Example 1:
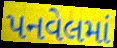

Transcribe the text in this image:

પનવેલમાં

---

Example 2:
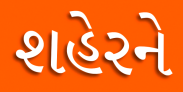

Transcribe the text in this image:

શહેરને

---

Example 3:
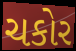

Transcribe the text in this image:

ચકોર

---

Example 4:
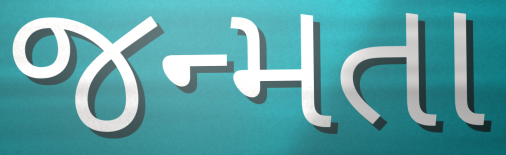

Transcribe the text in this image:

જન્મતા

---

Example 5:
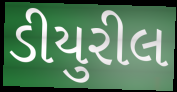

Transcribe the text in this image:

ડીયુરીલ